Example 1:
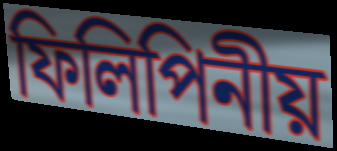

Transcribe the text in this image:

ফিলিপিনীয়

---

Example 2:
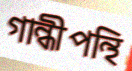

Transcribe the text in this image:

গান্ধীপন্থি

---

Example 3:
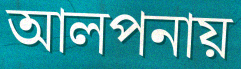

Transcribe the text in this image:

আলপনায়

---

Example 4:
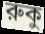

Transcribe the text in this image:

রুকু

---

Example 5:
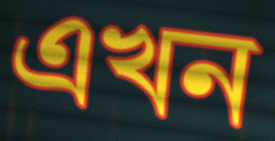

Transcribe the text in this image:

এখন